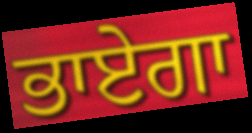
ਭਾਏਗਾ